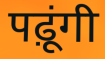
पढ़ूंगी